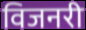
विजनरी